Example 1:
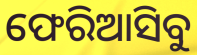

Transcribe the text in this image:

ଫେରିଆସିବୁ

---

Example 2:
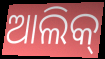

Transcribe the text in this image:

ଆଲିକ୍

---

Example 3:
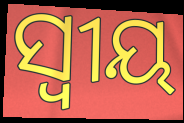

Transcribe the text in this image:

ସ୍ବୀୟ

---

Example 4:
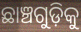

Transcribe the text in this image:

ଛାଞ୍ଚଗୁଡ଼ିକୁ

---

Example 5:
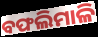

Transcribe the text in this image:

ବଫଲିମାଳି